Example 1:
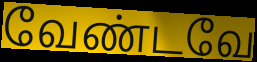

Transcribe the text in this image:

வேண்டவே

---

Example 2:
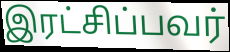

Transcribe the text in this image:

இரட்சிப்பவர்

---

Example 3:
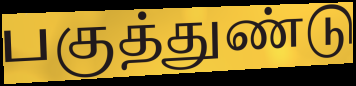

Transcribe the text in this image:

பகுத்துண்டு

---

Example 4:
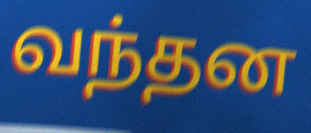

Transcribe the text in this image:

வந்தன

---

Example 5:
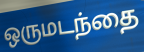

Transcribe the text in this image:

ஒருமடந்தை